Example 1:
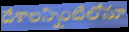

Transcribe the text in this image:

దేశాలన్నింటిలోనూ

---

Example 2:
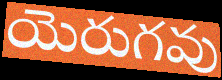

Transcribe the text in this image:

యెరుగవు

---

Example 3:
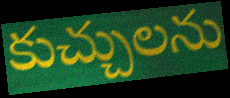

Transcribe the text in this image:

కుచ్చులను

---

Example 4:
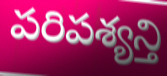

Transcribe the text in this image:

పరిపశ్యన్తి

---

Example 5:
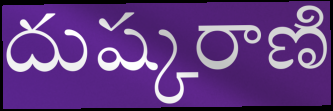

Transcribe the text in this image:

దుష్కరాణి